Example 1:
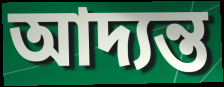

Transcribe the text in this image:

আদ্যন্ত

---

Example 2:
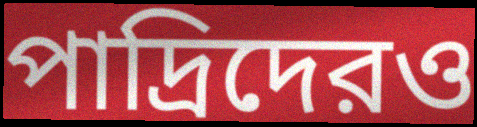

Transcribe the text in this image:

পাদ্রিদেরও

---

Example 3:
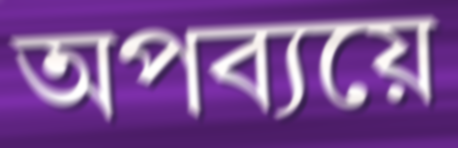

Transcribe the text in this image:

অপব্যয়ে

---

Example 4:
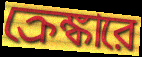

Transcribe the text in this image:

ক্রেঙ্কারে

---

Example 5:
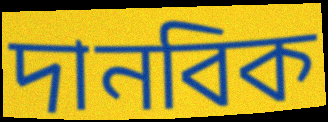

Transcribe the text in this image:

দানবিক